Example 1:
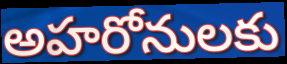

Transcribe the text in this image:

అహరోనులకు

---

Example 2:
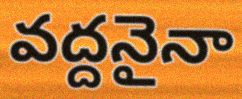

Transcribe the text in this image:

వద్దనైనా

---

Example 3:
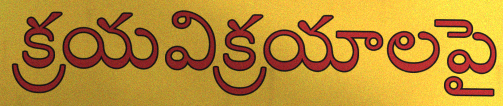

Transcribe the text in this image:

క్రయవిక్రయాలపై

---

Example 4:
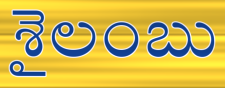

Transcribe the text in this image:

శైలంబు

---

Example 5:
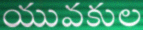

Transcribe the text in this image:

యువకుల